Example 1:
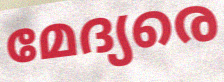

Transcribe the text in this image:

മേദ്യരെ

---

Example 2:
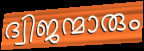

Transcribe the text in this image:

ദ്വിജന്മാരും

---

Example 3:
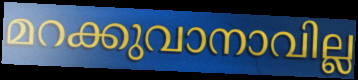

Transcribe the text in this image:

മറക്കുവാനാവില്ല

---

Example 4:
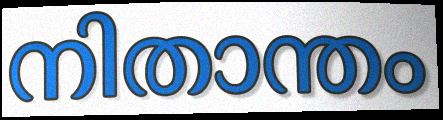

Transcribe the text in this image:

നിതാന്തം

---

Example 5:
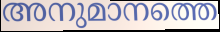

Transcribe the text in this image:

അനുമാനത്തെ